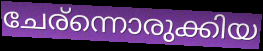
ചേര്ന്നൊരുക്കിയ